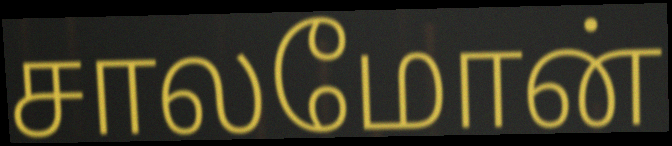
சாலமோன்